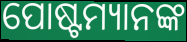
ପୋଷ୍ଟମ୍ୟାନଙ୍କ